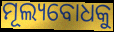
ମୂଲ୍ୟବୋଧକୁ